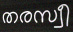
തരസ്വീ